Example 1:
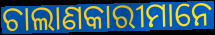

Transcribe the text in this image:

ଚାଲାଣକାରୀମାନେ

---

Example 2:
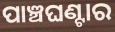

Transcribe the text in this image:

ପାଞ୍ଚଘଣ୍ଟାର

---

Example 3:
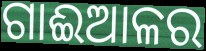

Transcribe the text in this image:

ଗାଈଆଳର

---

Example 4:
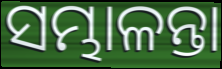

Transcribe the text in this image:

ସମ୍ଭାଳନ୍ତା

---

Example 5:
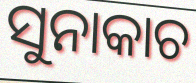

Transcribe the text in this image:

ସୁନାକାଚ